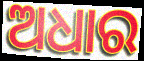
ଅଧାର